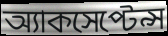
অ্যাকসেপ্টেন্স